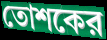
তোশকের